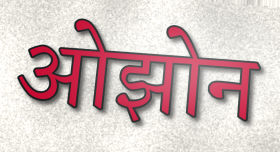
ओझोन